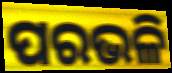
ପରଭଳି